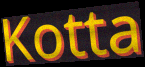
Kotta